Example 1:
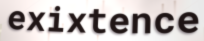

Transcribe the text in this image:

exixtence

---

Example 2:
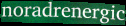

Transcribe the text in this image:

noradrenergic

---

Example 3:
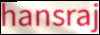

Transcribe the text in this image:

hansraj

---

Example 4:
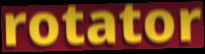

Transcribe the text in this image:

rotator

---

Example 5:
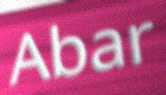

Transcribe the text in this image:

Abar